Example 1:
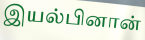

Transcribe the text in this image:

இயல்பினான்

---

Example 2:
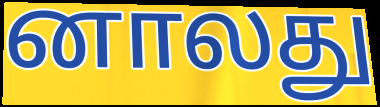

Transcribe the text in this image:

னாலது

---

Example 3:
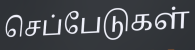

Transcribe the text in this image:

செப்பேடுகள்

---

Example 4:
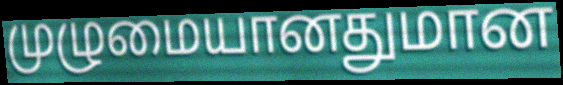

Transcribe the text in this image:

முழுமையானதுமான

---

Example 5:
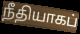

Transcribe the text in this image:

நீதியாகப்